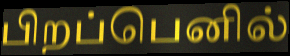
பிறப்பெனில்